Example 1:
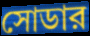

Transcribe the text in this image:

সোডার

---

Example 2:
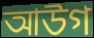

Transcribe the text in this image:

আউগ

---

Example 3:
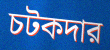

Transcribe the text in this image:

চটকদার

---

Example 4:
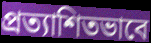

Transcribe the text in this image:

প্রত্যাশিতভাবে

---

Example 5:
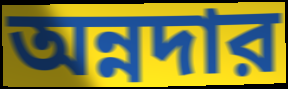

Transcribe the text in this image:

অন্নদার